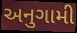
અનુગામી